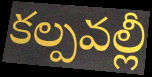
కల్పవల్లీ